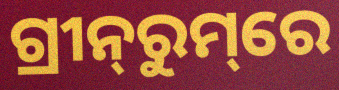
ଗ୍ରୀନ୍‌ରୁମ୍‌ରେ